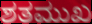
ಶತಮುಖ